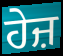
ਹੇਜ਼